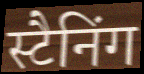
स्टैनिंग